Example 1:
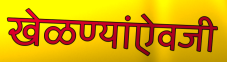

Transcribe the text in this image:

खेळण्यांऐवजी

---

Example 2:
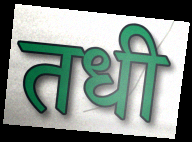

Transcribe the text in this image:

तधी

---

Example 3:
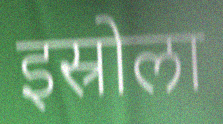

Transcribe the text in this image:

इस्रोला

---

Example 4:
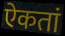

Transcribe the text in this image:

ऐकतां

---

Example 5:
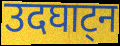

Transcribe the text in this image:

उदघाट्न